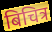
बिचित्र